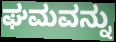
ಘಮವನ್ನು